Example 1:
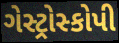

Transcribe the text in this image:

ગેસ્ટ્રોસ્કોપી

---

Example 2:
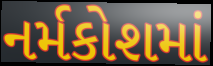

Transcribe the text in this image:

નર્મકોશમાં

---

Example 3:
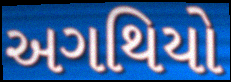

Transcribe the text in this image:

અગથિયો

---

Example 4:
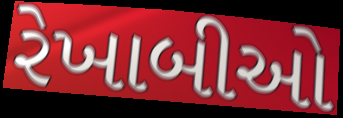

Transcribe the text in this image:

રેખાબીઓ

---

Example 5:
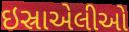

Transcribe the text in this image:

ઇસ્રાએલીઓ